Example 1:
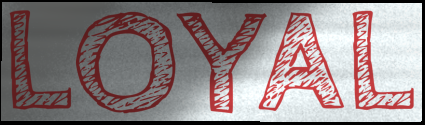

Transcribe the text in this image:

LOYAL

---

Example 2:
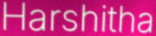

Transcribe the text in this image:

Harshitha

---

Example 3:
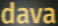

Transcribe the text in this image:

dava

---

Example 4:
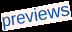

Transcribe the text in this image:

previews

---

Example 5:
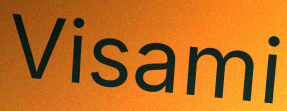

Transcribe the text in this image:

Visami